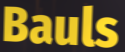
Bauls